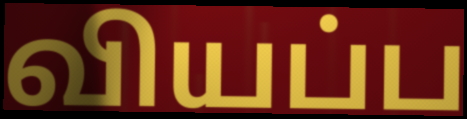
வியப்ப